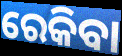
ରେକିବା